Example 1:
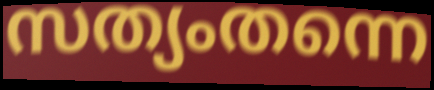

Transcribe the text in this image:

സത്യംതന്നെ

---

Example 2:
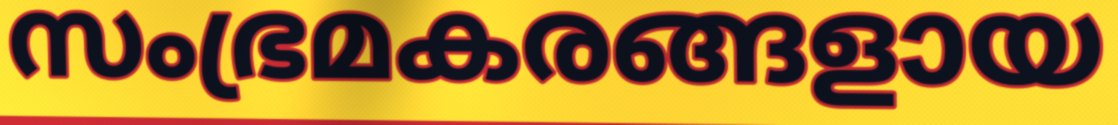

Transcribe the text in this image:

സംഭ്രമകരങ്ങളായ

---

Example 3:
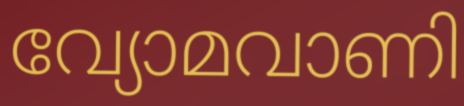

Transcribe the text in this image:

വ്യോമവാണി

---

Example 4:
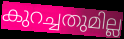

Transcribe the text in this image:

കുറച്ചതുമില്ല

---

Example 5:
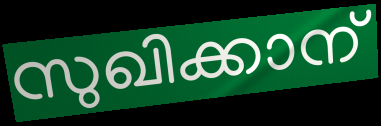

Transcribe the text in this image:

സുഖിക്കാന്